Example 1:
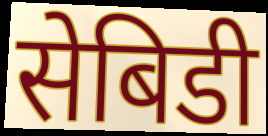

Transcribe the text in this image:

सेबिडी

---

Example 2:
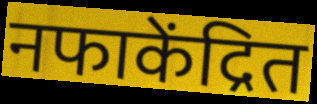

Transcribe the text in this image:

नफाकेंद्रित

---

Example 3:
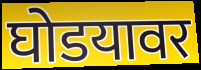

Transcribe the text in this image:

घोडयावर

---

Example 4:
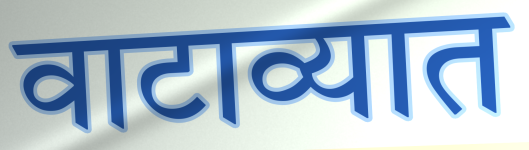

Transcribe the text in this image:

वाटाव्यात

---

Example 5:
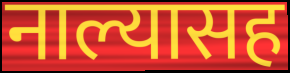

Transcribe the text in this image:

नाल्यासह